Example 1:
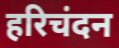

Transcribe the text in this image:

हरिचंदन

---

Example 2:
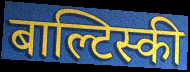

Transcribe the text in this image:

बाल्टिस्की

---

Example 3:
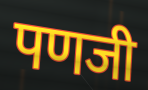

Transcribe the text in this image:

पणजी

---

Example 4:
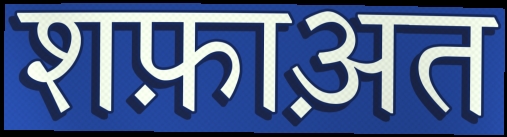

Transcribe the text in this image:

शफ़ाअ़त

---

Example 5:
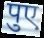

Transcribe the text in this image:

पुए